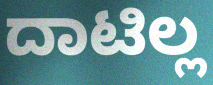
ದಾಟಿಲ್ಲ